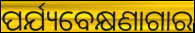
ପର୍ଯ୍ୟବେକ୍ଷଣାଗାର